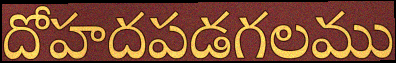
దోహదపడగలము